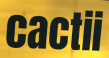
cactii